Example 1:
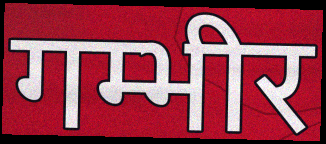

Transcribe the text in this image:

गम्भीर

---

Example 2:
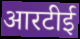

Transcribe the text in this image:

आरटीई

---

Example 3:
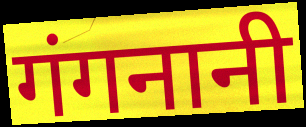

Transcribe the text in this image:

गंगनानी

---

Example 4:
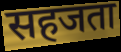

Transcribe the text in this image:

सहजता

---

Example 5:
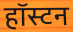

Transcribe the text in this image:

हॉस्टन